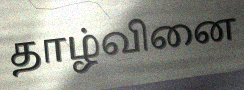
தாழ்வினை